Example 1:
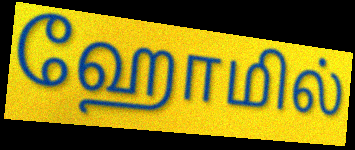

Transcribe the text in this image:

ஹோமில்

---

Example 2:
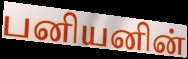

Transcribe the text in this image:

பனியனின்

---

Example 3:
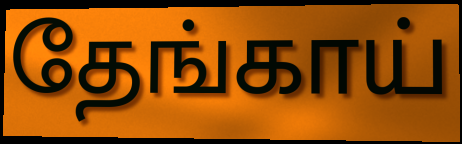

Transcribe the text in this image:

தேங்காய்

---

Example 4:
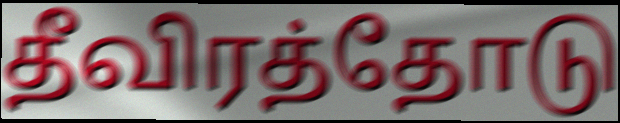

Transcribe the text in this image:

தீவிரத்தோடு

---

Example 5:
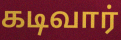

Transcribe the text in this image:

கடிவார்